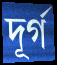
দূর্গ